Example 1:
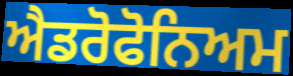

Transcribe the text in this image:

ਐਡਰੋਫੋਨਿਅਮ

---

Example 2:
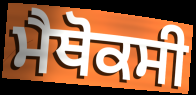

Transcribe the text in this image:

ਮੈਥੋਕਸੀ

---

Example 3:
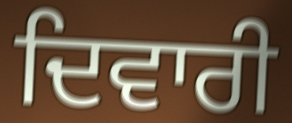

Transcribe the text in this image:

ਦਿਵਾਰੀ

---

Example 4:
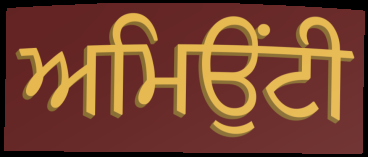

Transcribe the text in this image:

ਅਮਿਉਂਟੀ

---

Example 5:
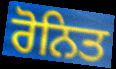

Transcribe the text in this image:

ਰੋਨਿਤ